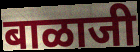
बाळाजी